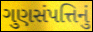
ગુણસંપત્તિનું